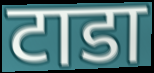
टाडा